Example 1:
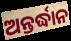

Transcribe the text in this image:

ଅନ୍ତର୍ଦ୍ଧାନ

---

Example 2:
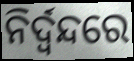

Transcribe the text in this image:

ନିର୍ଦ୍ୱନ୍ଦରେ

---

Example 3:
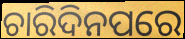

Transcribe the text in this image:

ଚାରିଦିନପରେ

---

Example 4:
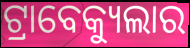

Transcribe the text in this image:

ଟ୍ରାବେକ୍ୟୁଲାର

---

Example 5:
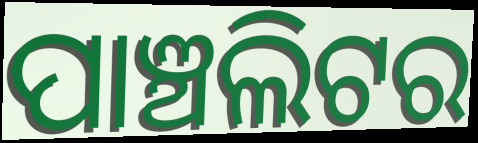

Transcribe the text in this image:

ପାଞ୍ଚଲିଟର